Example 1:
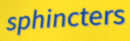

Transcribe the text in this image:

sphincters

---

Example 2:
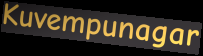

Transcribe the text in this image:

Kuvempunagar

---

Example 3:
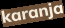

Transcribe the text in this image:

karanja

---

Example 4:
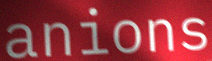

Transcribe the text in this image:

anions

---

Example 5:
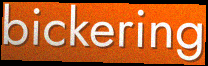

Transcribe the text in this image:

bickering